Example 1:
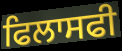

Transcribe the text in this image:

ਫਿਲਾਸਫੀ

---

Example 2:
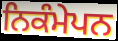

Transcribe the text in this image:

ਨਿਕੰਮੇਪਨ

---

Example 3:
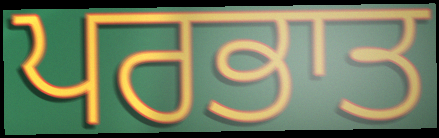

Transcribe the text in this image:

ਪਰਭਾਤ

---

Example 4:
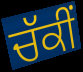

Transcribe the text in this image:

ਚੱਕੀਂ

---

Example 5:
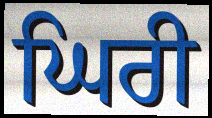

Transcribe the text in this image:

ਘਿਰੀ